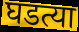
घडत्या